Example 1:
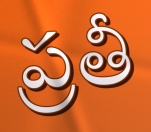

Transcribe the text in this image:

ప్రతీ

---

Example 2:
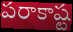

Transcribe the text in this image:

పరాకాష్ట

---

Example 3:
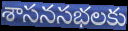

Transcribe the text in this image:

శాసనసభలకు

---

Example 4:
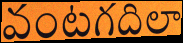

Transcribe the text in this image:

వంటగదిలా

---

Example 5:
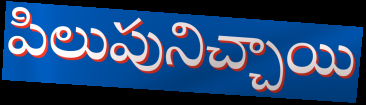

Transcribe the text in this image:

పిలుపునిచ్చాయి